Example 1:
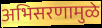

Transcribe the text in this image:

अभिसरणामुळे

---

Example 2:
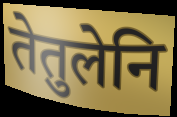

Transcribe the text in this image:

तेतुलेनि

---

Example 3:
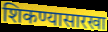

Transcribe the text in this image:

शिकण्यासारखा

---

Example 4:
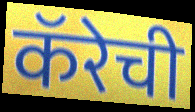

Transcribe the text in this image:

कॅरेची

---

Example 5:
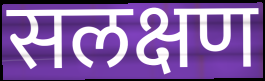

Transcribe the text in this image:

सलक्षण